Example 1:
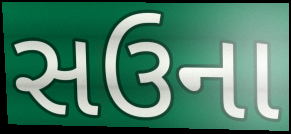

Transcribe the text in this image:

સઉના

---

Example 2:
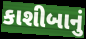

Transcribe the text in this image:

કાશીબાનું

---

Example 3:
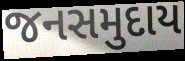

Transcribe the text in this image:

જનસમુદાય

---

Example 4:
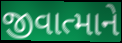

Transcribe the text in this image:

જીવાત્માને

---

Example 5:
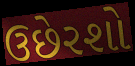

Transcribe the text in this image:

ઉછેરશો